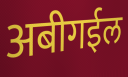
अबीगईल